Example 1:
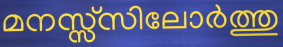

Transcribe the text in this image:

മനസ്സ്സിലോർത്തു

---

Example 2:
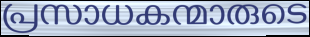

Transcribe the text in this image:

പ്രസാധകന്മാരുടെ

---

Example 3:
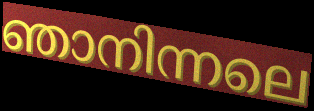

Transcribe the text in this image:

ഞാനിന്നലെ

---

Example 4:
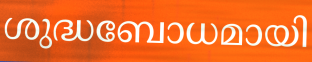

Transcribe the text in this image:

ശുദ്ധബോധമായി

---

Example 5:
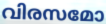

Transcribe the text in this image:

വിരസമോ